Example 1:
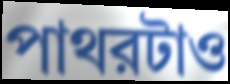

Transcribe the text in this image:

পাথরটাও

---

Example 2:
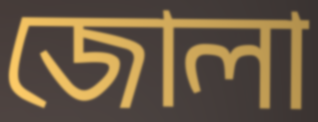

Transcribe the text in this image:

জোলা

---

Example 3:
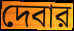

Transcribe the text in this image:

দেবার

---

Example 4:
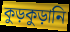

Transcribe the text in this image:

কুড়কুড়ানি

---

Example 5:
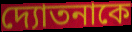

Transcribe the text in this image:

দ্যোতনাকে